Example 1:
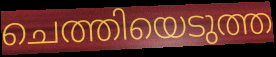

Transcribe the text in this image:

ചെത്തിയെടുത്ത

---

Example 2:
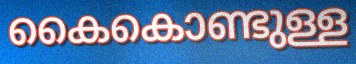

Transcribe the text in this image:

കൈകൊണ്ടുള്ള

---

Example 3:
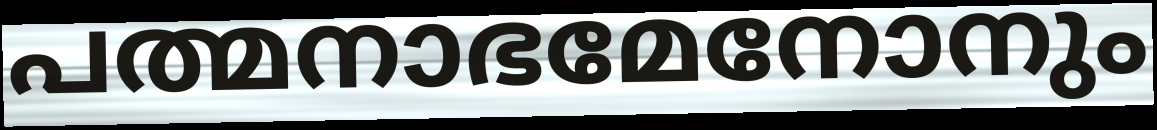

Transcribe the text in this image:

പത്മനാഭമേനോനും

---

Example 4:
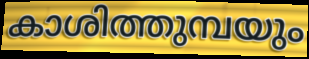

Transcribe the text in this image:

കാശിത്തുമ്പയും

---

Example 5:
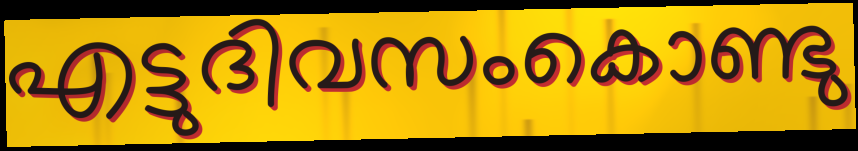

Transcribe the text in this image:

എട്ടുദിവസംകൊണ്ടു